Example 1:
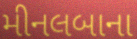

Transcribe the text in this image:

મીનલબાના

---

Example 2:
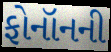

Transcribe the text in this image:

ફોનૉનની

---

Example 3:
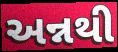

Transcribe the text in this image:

અન્નથી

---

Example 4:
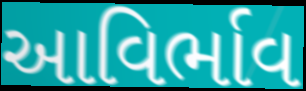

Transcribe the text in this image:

આવિર્ભાવ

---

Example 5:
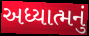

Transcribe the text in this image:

અધ્યાત્મનું